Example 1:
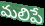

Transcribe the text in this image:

మలిపే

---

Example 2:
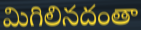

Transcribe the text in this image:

మిగిలినదంతా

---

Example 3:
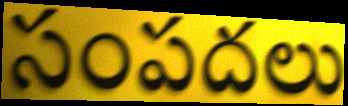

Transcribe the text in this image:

సంపదలు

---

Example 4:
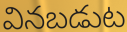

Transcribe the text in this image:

వినబడుట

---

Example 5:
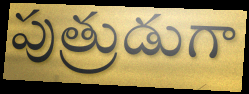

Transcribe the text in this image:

పుత్రుడుగా